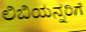
ಲಿಬಿಯನ್ನರಿಗೆ